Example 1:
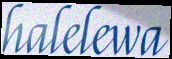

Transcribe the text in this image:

halelewa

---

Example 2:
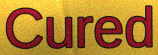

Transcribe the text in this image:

Cured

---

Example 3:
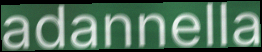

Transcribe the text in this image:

adannella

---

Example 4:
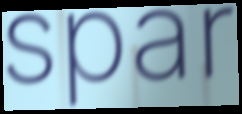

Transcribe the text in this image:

spar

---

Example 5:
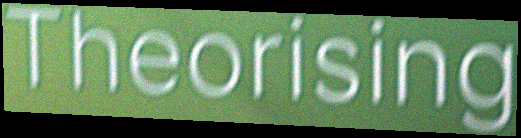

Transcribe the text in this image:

Theorising